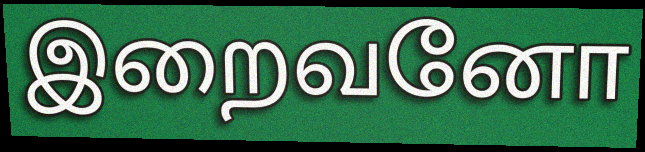
இறைவனோ